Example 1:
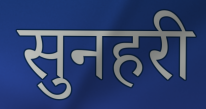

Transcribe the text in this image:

सुनहरी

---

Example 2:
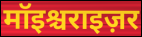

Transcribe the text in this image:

मॉइश्चराइज़र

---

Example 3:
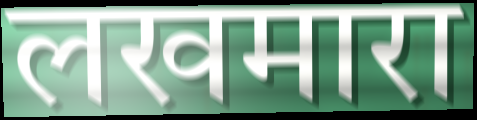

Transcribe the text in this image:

लखमारा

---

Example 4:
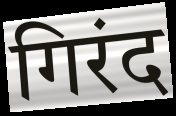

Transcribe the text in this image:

गिरंद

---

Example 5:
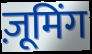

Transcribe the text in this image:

ज़ूमिंग